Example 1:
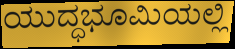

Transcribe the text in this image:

ಯುದ್ಧಭೂಮಿಯಲ್ಲಿ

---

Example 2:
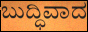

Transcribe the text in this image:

ಬುದ್ಧಿವಾದ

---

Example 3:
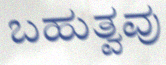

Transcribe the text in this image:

ಬಹುತ್ವವು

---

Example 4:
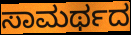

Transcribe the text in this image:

ಸಾಮರ್ಥದ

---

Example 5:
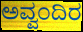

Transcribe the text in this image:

ಅವ್ವಂದಿರ